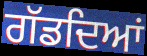
ਗੱਡਦਿਆਂ